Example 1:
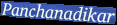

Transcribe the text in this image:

Panchanadikar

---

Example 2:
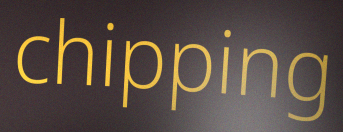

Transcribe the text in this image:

chipping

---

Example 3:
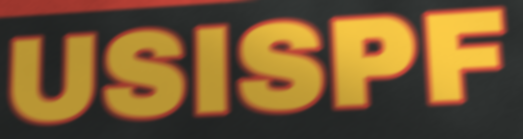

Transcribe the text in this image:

USISPF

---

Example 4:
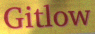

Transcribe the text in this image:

Gitlow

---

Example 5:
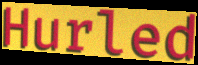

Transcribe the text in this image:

Hurled